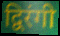
द्विरंगी